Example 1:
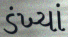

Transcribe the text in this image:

ડંખ્યાં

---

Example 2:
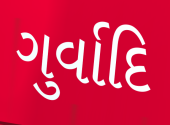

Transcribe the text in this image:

ગુર્વાદિ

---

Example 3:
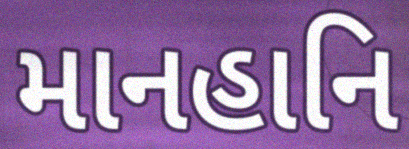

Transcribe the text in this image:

માનહાનિ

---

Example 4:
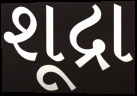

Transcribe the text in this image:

શૂદ્રા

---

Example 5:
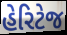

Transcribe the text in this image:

હેરિટેજ